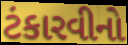
ટંકારવીનો